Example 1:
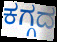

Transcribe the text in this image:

ಕಗ್ಗದ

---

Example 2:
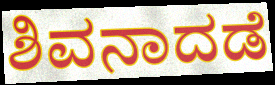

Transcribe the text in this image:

ಶಿವನಾದಡೆ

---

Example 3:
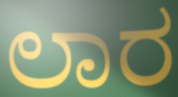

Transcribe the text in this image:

ಲಾರ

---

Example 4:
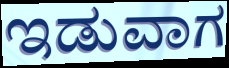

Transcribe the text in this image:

ಇಡುವಾಗ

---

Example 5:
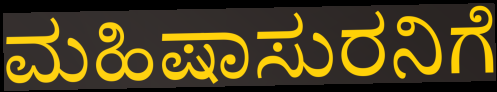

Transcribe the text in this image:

ಮಹಿಷಾಸುರನಿಗೆ